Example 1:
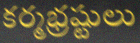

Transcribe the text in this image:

కర్మభ్రష్టులు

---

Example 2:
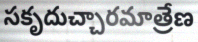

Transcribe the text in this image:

సకృదుచ్చారమాత్రేణ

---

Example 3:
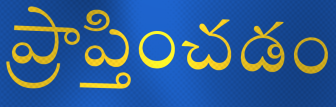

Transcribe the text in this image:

ప్రాప్తించడం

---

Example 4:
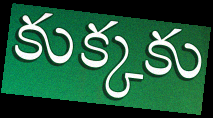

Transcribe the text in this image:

కుక్కకు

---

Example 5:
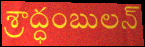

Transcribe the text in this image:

శ్రాద్ధంబులన్